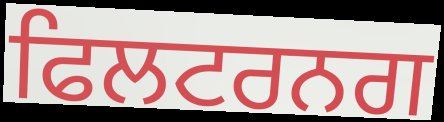
ਫਿਲਟਰਨਗ